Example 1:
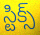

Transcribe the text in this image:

స్టిక్స్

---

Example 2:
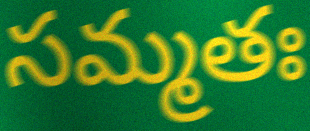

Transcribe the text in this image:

సమ్మతః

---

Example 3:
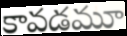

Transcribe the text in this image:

కావడమూ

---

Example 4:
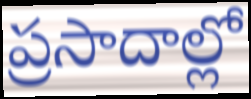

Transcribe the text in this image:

ప్రసాదాల్లో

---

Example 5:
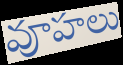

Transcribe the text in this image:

వూహలు